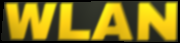
WLAN